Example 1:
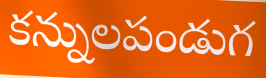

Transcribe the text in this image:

కన్నులపండుగ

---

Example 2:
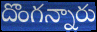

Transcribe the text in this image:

దొంగన్నారు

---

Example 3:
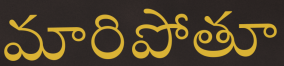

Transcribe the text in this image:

మారిపోతూ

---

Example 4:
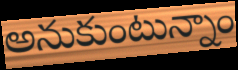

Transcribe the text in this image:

అనుకుంటున్నాం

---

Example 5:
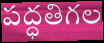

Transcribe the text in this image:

పద్ధతిగల